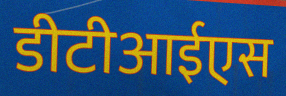
डीटीआईएस